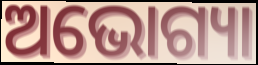
ଅଭୋଗ୍ୟା